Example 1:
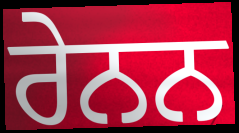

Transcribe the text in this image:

ਰੇਨਨ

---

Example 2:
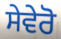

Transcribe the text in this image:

ਸੇਵੇਰੋ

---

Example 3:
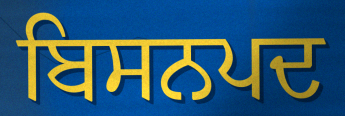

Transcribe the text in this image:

ਬਿਸਨਪਦ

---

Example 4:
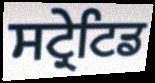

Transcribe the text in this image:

ਸਟ੍ਰੇਟਿਡ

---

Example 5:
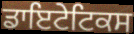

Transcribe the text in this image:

ਡਾਇਟੇਟਿਕਸ